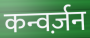
कन्वर्ज़न